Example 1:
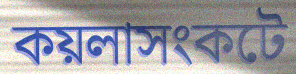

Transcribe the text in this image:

কয়লাসংকটে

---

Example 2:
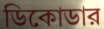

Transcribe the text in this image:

ডিকোডার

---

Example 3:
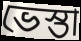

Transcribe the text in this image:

ভেস্তা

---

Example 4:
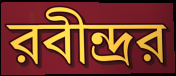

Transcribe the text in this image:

রবীন্দ্রর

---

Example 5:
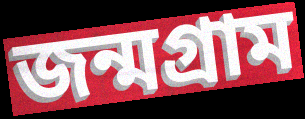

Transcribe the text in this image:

জন্মগ্রাম